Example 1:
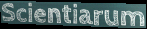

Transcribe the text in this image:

Scientiarum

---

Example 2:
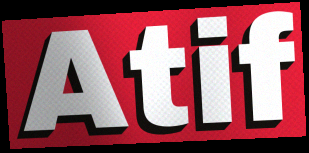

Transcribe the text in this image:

Atif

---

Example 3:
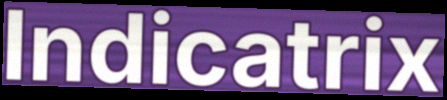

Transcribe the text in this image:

Indicatrix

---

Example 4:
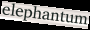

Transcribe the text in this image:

elephantum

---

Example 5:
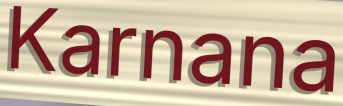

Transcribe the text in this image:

Karnana